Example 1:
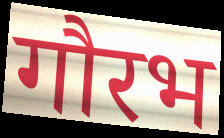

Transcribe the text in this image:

गौरभ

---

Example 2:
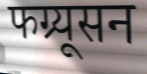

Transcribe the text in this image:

फग्र्यूसन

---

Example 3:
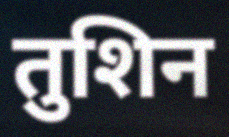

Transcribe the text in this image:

तुशिन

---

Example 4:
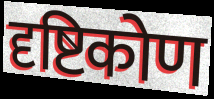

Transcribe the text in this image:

दृष्टिकोण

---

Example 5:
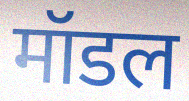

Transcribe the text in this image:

मॉडल